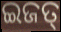
ଇଜତ୍